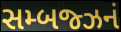
સમ્બજ્ઝનં